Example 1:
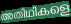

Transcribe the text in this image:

അതിഥികളെ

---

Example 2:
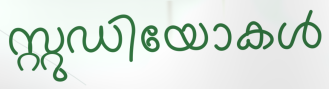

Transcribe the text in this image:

സ്റ്റുഡിയോകൾ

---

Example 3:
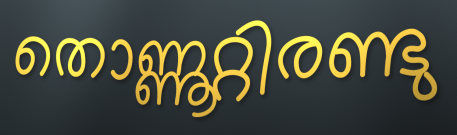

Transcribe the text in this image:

തൊണ്ണൂറ്റിരണ്ടു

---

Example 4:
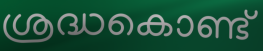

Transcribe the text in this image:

ശ്രദ്ധകൊണ്ട്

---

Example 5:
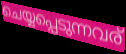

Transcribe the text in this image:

ചെയ്യപ്പെടുന്നവര്